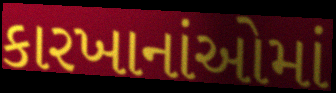
કારખાનાંઓમાં